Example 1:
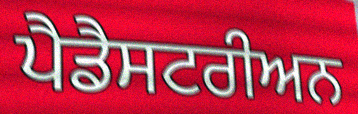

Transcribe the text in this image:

ਪੈਡੈਸਟਰੀਅਨ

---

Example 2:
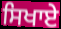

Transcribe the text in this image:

ਸਿਖਾਏ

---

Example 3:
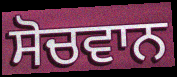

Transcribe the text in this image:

ਸੋਚਵਾਨ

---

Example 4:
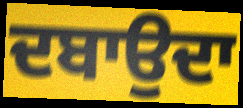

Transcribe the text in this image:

ਦਬਾਉਦਾ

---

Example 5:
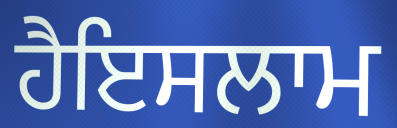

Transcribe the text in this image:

ਹੈਇਸਲਾਮ